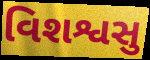
વિશશ્વસુ